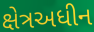
ક્ષેત્રઅધીન